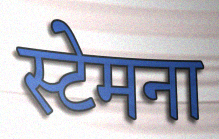
स्टेमना